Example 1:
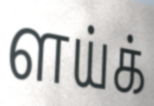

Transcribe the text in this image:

ளய்க்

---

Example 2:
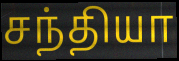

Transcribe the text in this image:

சந்தியா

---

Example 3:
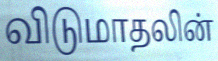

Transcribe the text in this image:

விடுமாதலின்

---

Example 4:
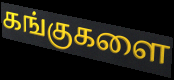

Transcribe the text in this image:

கங்குகளை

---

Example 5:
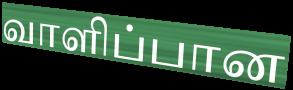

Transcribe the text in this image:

வாளிப்பான